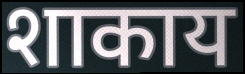
शाकाय